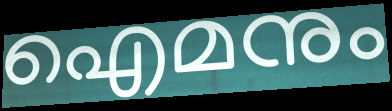
ഐമനും